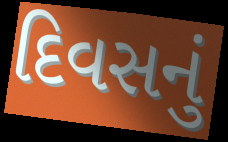
દિવસનું